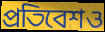
প্রতিবেশও